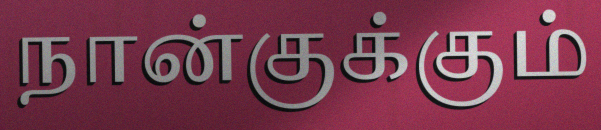
நான்குக்கும்